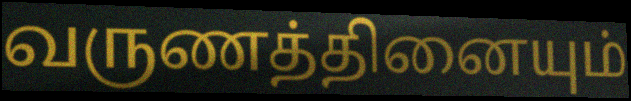
வருணத்தினையும்